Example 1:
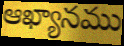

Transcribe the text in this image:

ఆఖ్యానము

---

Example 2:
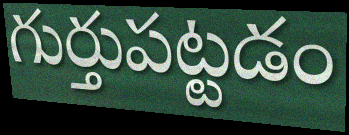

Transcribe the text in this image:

గుర్తుపట్టడం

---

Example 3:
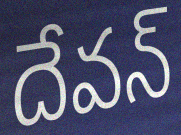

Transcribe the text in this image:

దేవన్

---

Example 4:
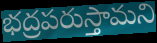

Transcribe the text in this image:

భద్రపరుస్తామని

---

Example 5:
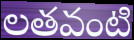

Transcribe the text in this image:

లతవంటి